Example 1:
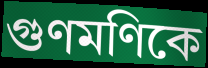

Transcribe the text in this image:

গুণমণিকে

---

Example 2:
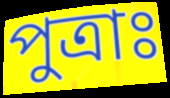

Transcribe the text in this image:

পুত্রাঃ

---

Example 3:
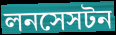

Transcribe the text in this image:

লনসেসটন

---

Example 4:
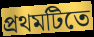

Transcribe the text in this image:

প্রথমটিতে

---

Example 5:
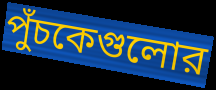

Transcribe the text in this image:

পুঁচকেগুলোর